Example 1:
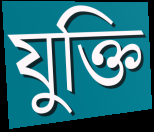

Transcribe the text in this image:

যুক্তি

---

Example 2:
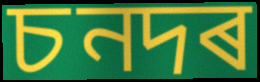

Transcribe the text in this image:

চনদৰ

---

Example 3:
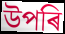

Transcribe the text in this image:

উপৰি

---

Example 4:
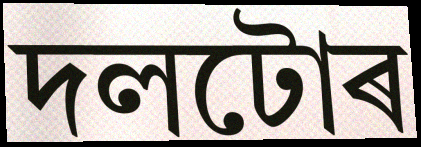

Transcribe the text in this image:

দলটোৰ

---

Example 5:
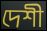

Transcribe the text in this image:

দেশী